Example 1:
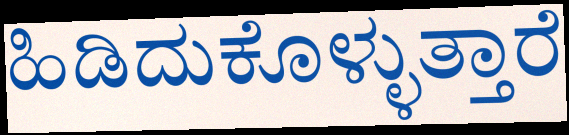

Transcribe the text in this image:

ಹಿಡಿದುಕೊಳ್ಳುತ್ತಾರೆ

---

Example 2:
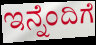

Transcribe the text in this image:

ಇನ್ನೆಂದಿಗೆ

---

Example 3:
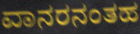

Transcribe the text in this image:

ವಾನರನಂತಹ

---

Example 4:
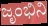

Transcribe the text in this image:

ಜೃಂಭಿನಿ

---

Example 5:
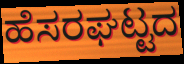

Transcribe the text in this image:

ಹೆಸರಘಟ್ಟದ